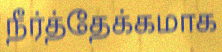
நீர்த்தேக்கமாக